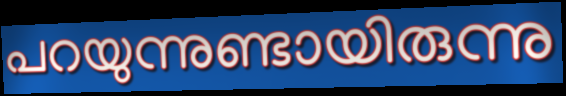
പറയുന്നുണ്ടായിരുന്നു